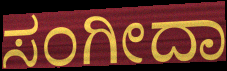
ಸಂಗೀದಾ